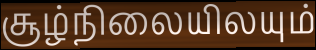
சூழ்நிலையிலயும்